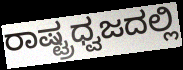
ರಾಷ್ಟ್ರಧ್ವಜದಲ್ಲಿ